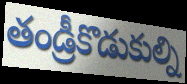
తండ్రీకొడుకుల్ని